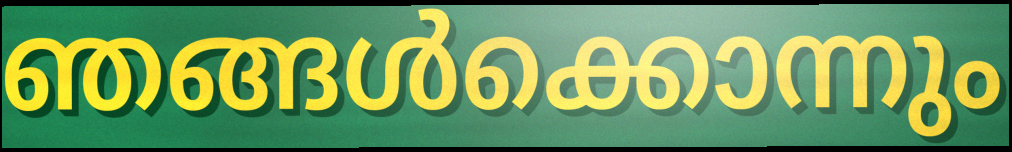
ഞങ്ങൾക്കൊന്നും